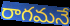
రాగమనే